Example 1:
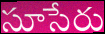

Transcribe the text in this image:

సూసేరు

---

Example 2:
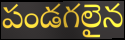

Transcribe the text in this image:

పండగలైన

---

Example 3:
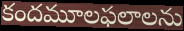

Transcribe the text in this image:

కందమూలఫలాలను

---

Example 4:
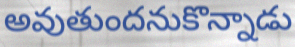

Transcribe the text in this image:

అవుతుందనుకొన్నాడు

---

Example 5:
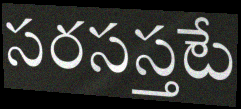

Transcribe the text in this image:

సరసస్తటే